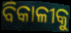
ବିକାଳୀକୁ